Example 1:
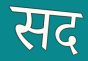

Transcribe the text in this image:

सद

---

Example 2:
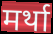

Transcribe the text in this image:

मर्था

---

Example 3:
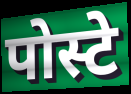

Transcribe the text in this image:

पोस्टे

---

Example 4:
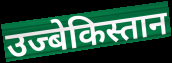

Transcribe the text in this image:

उज्बेकिस्तान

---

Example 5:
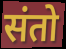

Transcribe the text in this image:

संतो